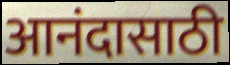
आनंदासाठी